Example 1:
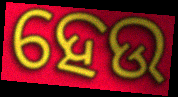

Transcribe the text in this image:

ହେଉ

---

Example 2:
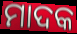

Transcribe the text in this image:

ମାଦକ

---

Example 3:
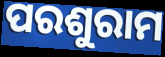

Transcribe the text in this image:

ପରଶୁରାମ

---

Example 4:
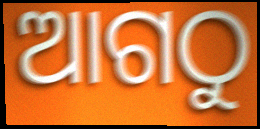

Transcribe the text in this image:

ଆଗଠୁ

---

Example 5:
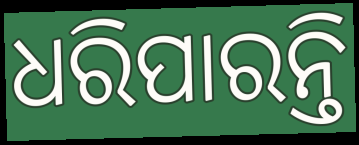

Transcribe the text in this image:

ଧରିପାରନ୍ତି